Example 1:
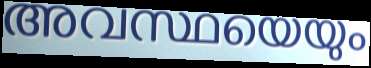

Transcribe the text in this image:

അവസ്ഥയെയും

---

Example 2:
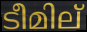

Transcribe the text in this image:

ടീമില്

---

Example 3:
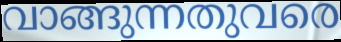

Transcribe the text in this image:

വാങ്ങുന്നതുവരെ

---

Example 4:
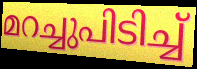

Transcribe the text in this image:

മറച്ചുപിടിച്ച്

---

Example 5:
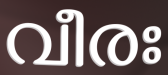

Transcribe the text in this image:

വീരഃ